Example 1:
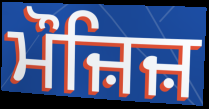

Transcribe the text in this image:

ਮੌਜ਼ਿਜ਼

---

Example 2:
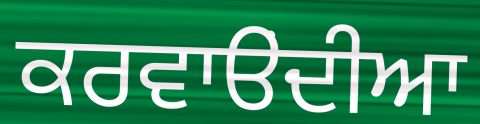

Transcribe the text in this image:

ਕਰਵਾੳਂਦੀਆ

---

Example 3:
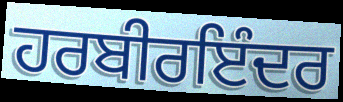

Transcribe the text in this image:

ਹਰਬੀਰਇੰਦਰ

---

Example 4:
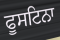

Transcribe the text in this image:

ਫੂਸਟਿਨਾ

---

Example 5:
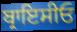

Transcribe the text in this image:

ਬ੍ਰਾਇਸੀਓ